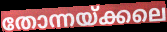
തോന്നയ്ക്കലെ